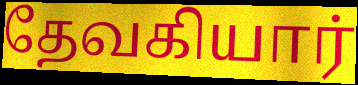
தேவகியார்